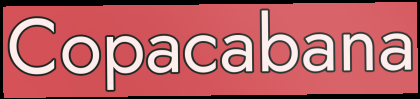
Copacabana